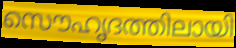
സൌഹൃദത്തിലായി